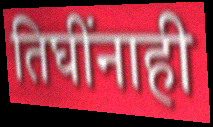
तिघींनाही